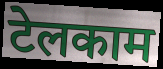
टेलकाम